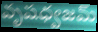
వృషధ్వజమ్